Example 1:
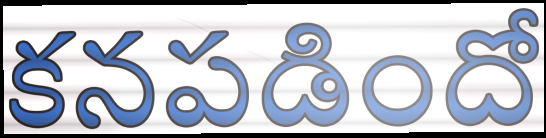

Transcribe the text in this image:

కనపడిందో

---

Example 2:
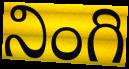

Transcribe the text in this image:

నింగి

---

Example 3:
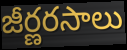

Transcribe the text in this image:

జీర్ణరసాలు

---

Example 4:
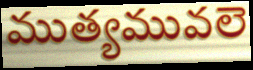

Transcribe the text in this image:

ముత్యమువలె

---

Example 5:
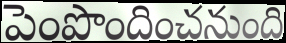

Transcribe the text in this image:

పెంపొందించనుంది